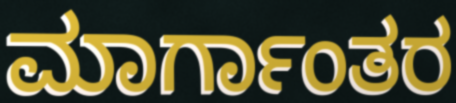
ಮಾರ್ಗಾಂತರ